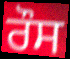
ਰੌਸ